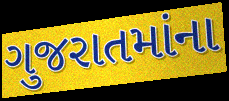
ગુજરાતમાંના